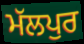
ਮੱਲਪੁਰ